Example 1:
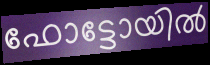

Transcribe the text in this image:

ഫോട്ടോയിൽ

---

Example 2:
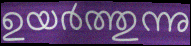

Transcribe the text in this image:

ഉയർത്തുന്നു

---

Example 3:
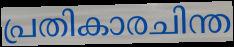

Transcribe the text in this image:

പ്രതികാരചിന്ത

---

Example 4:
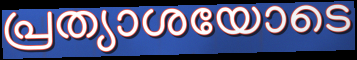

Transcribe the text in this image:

പ്രത്യാശയോടെ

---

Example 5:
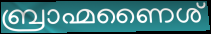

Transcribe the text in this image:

ബ്രാഹ്മണൈശ്